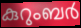
കുറുംബർ